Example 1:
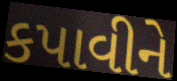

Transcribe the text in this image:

કપાવીને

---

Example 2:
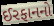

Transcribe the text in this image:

ઈરફાનનો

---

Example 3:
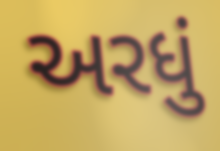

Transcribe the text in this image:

અરધું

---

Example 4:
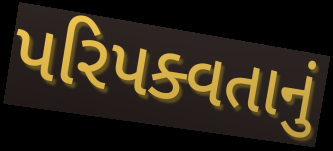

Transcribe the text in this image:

પરિપક્વતાનું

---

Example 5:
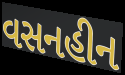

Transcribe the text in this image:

વસનહીન